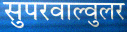
सुपरवाल्वुलर